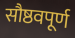
सौष्ठवपूर्ण